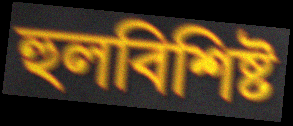
হুলবিশিষ্ট